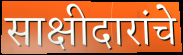
साक्षीदारांचे